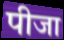
पीजा